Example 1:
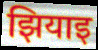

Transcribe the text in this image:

झियाइ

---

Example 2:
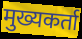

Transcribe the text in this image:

मुख्यकर्ता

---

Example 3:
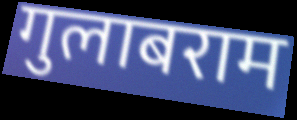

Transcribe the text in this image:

गुलाबराम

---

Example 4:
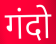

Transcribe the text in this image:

गंदो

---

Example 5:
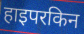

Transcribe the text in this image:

हाइपरकिन